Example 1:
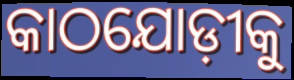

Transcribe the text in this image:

କାଠଯୋଡ଼ୀକୁ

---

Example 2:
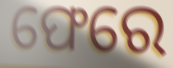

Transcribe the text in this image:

ଫେରେ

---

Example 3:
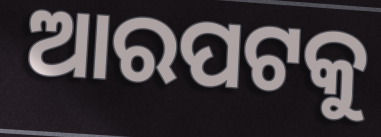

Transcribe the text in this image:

ଆରପଟକୁ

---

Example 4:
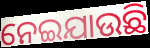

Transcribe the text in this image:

ନେଇଯାଉଛି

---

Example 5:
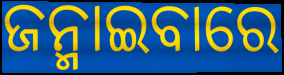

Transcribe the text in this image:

ଜନ୍ମାଇବାରେ